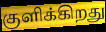
குளிக்கிறது